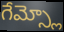
గేమ్స్లో